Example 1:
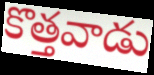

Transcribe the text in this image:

కొత్తవాడు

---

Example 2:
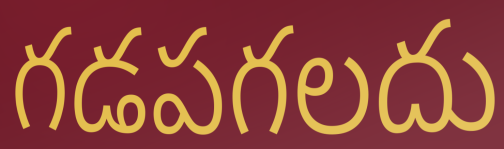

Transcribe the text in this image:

గడపగలదు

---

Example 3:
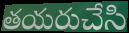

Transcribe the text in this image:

తయరుచేసి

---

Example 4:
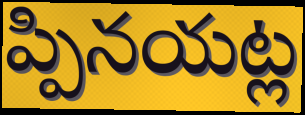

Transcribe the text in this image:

ప్పినయట్ల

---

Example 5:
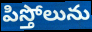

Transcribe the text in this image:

పిస్తోలును